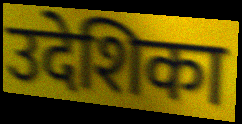
उदेशिका